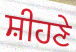
ਸ਼ੀਹਣੇ